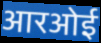
आरओई